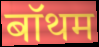
बॉथम